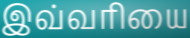
இவ்வரியை